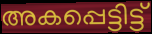
അകപ്പെട്ടിട്ട്